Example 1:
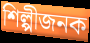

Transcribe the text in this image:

শিল্পীজনক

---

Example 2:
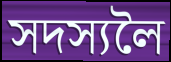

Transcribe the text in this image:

সদস্যলৈ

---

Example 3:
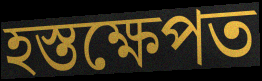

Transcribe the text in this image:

হস্তক্ষেপত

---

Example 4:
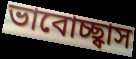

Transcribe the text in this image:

ভাবোচ্ছ্বাস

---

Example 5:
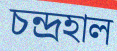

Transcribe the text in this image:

চন্দ্ৰহাল